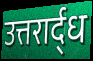
उत्तरार्द्ध